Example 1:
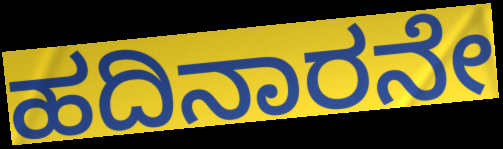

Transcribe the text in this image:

ಹದಿನಾರನೇ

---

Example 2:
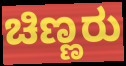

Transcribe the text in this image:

ಚಿಣ್ಣರು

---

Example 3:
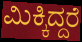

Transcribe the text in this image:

ಮಿಕ್ಕಿದ್ದರೆ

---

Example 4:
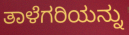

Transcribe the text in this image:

ತಾಳೆಗರಿಯನ್ನು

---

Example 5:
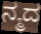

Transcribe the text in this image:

ನ್ಮದ